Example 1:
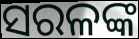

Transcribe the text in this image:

ସରଳଙ୍କ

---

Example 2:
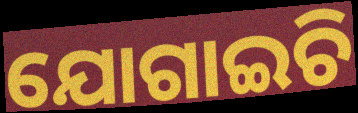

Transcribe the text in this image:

ଯୋଗାଇଚି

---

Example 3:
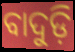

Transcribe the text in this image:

ବାଦୁଡ଼ି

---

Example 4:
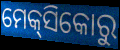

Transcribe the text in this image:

ମେକ୍‌ସିକୋରୁ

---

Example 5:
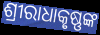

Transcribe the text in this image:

ଶ୍ରୀରାଧାକୃଷ୍ଣଙ୍କ